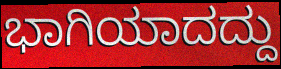
ಭಾಗಿಯಾದದ್ದು